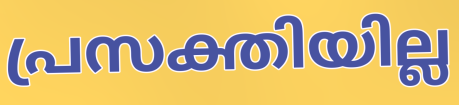
പ്രസക്തിയില്ല